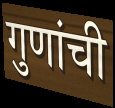
गुणांची